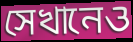
সেখানেও